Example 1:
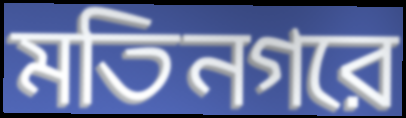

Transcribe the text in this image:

মতিনগরে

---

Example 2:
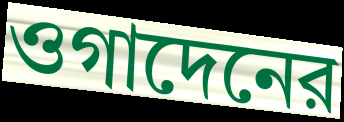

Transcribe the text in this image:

ওগাদেনের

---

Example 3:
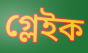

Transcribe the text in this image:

গ্লেইক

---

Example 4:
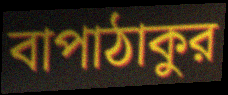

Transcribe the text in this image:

বাপাঠাকুর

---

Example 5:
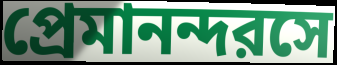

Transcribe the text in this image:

প্রেমানন্দরসে